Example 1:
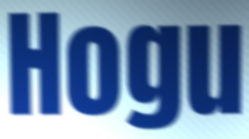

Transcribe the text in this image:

Hogu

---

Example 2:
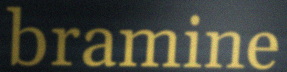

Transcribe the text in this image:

bramine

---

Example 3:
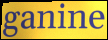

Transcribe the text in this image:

ganine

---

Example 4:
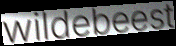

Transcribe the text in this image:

wildebeest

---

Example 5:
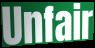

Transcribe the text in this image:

Unfair